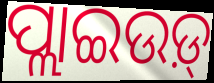
ପ୍ଲାଇଉଡ଼୍